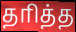
தரித்த